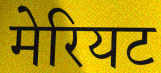
मेरियट